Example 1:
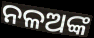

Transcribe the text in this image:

ନଳଅଙ୍କ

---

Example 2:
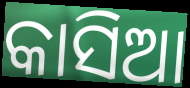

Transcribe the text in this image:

କାସିଆ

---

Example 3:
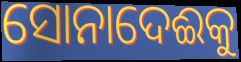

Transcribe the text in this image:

ସୋନାଦେଈକୁ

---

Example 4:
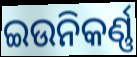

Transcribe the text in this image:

ଇଉନିକର୍ଣ୍ଣ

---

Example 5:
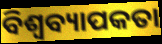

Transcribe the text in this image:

ବିଶ୍ୱବ୍ୟାପକତା